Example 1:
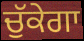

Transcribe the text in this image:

ਚੁੱਕੇਗਾ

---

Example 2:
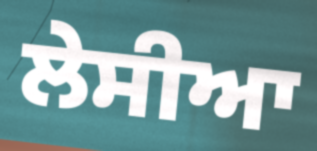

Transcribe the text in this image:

ਲੇਸੀਆ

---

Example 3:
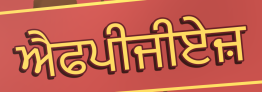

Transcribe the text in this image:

ਐਫਪੀਜੀਏਜ਼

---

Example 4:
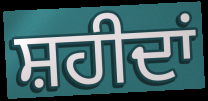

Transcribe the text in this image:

ਸ਼ਹੀਦਾਂ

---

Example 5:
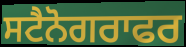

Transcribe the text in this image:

ਸਟੈਨੋਗਰਾਫਰ